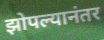
झोपल्यानंतर